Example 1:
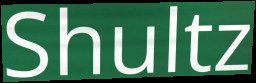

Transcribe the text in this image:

Shultz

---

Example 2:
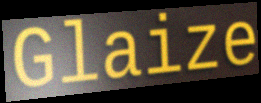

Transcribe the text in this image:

Glaize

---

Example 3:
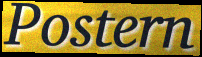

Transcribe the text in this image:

Postern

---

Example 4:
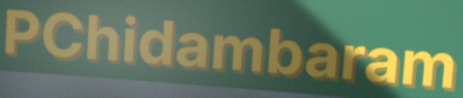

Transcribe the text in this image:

PChidambaram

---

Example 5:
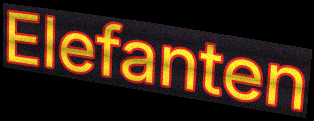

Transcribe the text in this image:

Elefanten